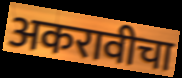
अकरावीचा